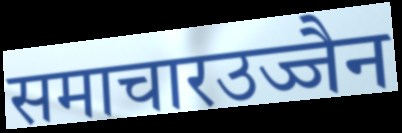
समाचारउज्जैन